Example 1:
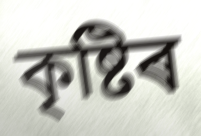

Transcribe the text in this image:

কৃষ্টিৰ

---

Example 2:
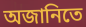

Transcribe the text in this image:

অজানিতে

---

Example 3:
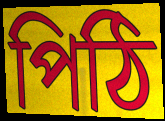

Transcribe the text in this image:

পিঠি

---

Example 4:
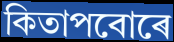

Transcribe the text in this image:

কিতাপবোৰে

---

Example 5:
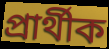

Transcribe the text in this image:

প্ৰাৰ্থীক